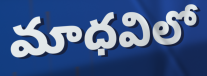
మాధవిలో